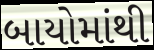
બાયોમાંથી